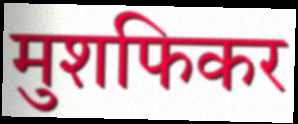
मुशफिकर